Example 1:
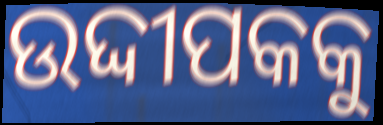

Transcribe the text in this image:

ଉଦ୍ଦୀପକକୁ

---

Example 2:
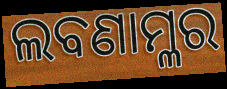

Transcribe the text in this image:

ଲବଣାମ୍ଳର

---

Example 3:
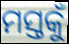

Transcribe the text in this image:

ମସ୍ତକୁଁ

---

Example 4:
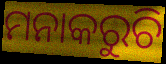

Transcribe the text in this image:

ମନାକରୁଚି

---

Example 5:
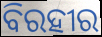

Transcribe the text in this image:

ବିରହୀର